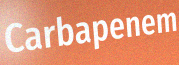
Carbapenem